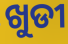
ଖୁଡୀ